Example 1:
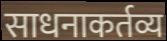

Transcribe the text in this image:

साधनाकर्तव्य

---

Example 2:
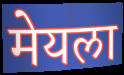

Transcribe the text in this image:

मेयला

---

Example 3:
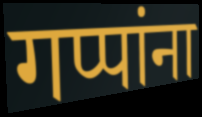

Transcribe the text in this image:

गप्पांना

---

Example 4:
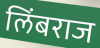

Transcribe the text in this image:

लिंबराज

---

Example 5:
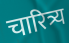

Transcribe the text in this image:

चारित्र्य